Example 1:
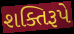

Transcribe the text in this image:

શક્તિરૂપે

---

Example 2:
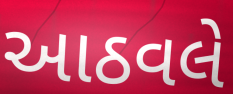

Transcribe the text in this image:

આઠવલે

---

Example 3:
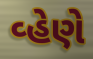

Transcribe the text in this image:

વ્હેણે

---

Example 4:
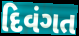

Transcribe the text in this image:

દિવંગત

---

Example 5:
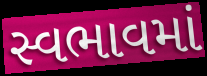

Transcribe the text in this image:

સ્વભાવમાં